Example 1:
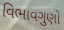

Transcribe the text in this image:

વિભાવગુણો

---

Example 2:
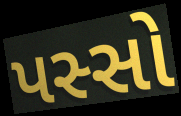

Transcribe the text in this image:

પસ્સો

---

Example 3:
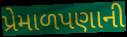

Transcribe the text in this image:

પ્રેમાળપણાની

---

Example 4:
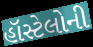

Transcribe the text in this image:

હૉસ્ટેલોની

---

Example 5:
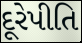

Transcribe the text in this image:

દૂરેપીતિ